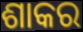
ଶାକର